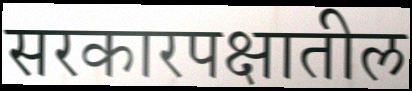
सरकारपक्षातील